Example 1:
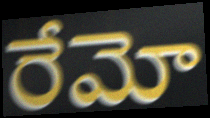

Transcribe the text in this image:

రేమో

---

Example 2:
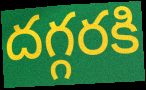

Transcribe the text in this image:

దగ్గరకి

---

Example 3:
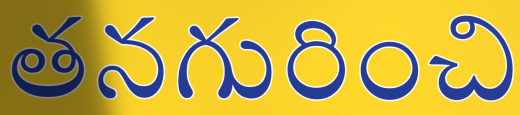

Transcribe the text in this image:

తనగురించి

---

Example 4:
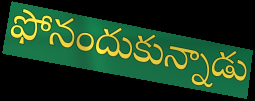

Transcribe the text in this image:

ఫోనందుకున్నాడు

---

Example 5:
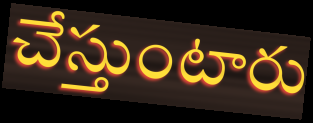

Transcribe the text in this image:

చేస్తుంటారు